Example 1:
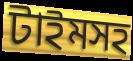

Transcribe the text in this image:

টাইমসহ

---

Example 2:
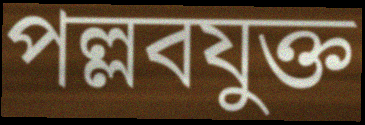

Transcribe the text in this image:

পল্লবযুক্ত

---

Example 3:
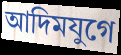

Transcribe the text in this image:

আদিমযুগে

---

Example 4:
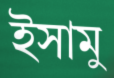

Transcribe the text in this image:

ইসামু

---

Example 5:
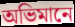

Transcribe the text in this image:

অভিমানে